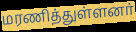
மரணித்துள்ளனர்